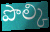
పొల్కి